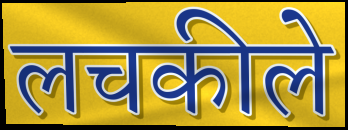
लचकीले